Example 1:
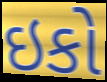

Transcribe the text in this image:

ઇકો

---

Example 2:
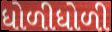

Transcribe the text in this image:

ધોળીધોળી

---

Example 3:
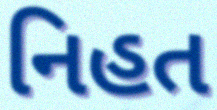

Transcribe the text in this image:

નિહત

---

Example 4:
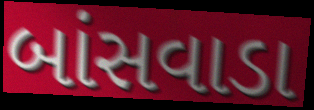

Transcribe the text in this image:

બાંસવાડા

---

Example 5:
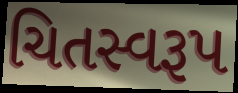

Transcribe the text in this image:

ચિતસ્વરૂપ